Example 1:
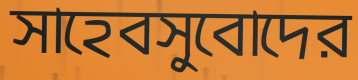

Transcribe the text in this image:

সাহেবসুবোদের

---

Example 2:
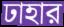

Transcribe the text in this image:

ঢাহার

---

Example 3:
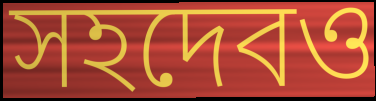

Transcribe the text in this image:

সহদেবও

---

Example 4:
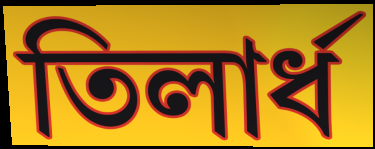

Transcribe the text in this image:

তিলার্ধ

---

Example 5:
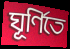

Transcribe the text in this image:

ঘূর্ণিতে